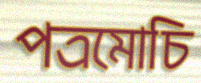
পত্রমোচি